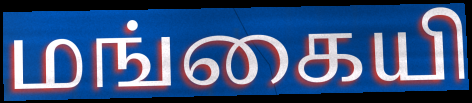
மங்கையி